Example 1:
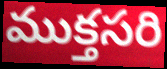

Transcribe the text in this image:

ముక్తసరి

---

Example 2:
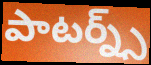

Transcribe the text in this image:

పాటర్న్స్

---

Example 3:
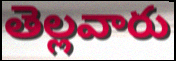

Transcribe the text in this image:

తెల్లవారు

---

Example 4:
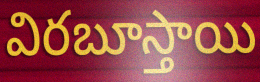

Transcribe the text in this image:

విరబూస్తాయి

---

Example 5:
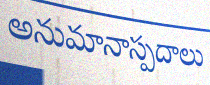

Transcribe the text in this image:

అనుమానాస్పదాలు